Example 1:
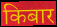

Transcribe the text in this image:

किबार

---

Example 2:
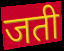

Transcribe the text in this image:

जती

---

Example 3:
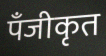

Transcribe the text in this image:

पँजीकृत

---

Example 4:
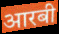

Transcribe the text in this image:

आरबी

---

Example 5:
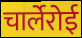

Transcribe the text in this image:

चार्लेरोई